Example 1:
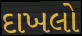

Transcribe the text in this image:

દાખલો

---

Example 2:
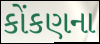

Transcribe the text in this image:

કોંકણના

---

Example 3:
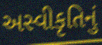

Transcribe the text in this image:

અસ્વીકૃતિનું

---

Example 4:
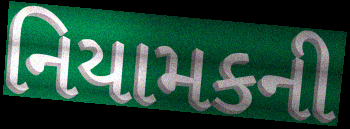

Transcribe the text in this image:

નિયામકની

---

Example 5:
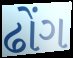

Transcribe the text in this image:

ઢોંગ